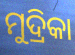
ମୁଦ୍ରିକା